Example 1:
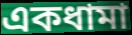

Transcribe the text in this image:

একধামা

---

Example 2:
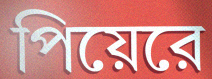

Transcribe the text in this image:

পিয়েরে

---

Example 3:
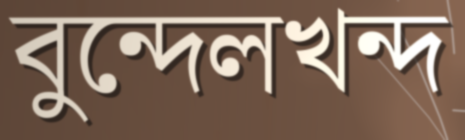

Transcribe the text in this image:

বুন্দেলখন্দ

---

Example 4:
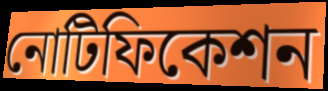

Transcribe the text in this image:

নোটিফিকেশন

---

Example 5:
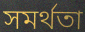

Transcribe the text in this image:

সমর্থতা